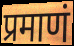
प्रमाणं